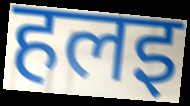
हलइ